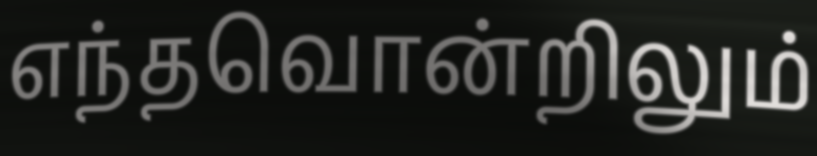
எந்தவொன்றிலும்